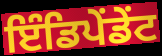
ਇੰਡਿਪੇਂਡੇਂਟ